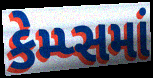
કેમ્પ્સમાં